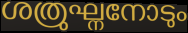
ശത്രുഘ്നനോടും